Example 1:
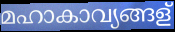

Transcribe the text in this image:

മഹാകാവ്യങ്ങള്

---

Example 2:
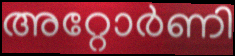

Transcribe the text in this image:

അറ്റോർണി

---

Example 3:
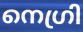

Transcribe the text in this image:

നെഗ്രി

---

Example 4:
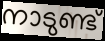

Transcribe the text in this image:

നാടുണ്ട്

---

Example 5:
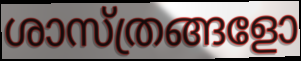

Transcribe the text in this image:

ശാസ്ത്രങ്ങളോ